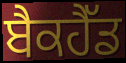
ਬੈਕਹੈੱਡ